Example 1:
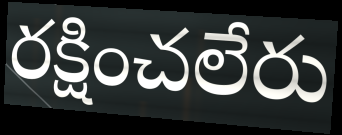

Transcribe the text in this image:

రక్షించలేరు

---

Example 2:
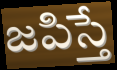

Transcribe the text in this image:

జపిస్తే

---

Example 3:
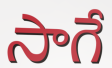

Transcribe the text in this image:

సాగే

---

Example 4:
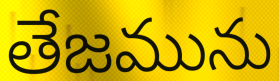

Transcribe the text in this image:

తేజమును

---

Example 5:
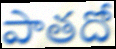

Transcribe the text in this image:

పాతదో